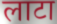
लाटा